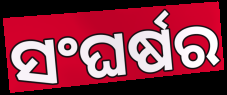
ସଂଘର୍ଷର